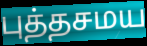
புத்தசமய